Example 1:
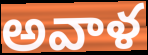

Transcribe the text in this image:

అవాళ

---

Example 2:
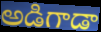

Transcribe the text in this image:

అడిగాడా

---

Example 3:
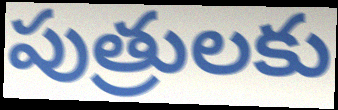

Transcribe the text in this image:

పుత్రులకు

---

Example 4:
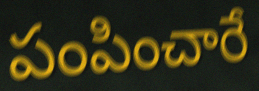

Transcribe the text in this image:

పంపించారే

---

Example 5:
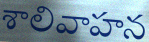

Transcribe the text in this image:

శాలివాహన